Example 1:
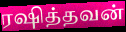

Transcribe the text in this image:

ரஷித்தவன்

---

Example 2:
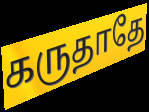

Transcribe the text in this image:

கருதாதே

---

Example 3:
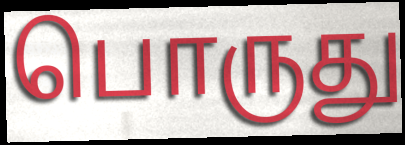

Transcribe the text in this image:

பொருது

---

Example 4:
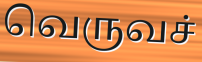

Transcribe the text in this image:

வெருவச்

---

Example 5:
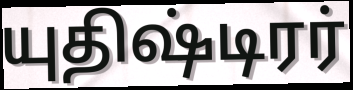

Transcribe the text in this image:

யுதிஷ்டிரர்